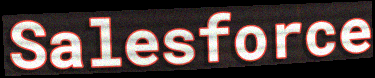
Salesforce